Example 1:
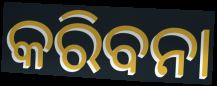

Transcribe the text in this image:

କରିବନା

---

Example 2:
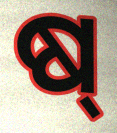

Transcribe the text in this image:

ଷ୍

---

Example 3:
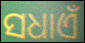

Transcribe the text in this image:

ସଧାଏଁ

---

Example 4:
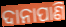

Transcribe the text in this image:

ଦାନାପାଣି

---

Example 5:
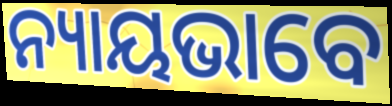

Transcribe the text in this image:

ନ୍ୟାୟଭାବେ